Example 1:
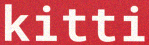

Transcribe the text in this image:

kitti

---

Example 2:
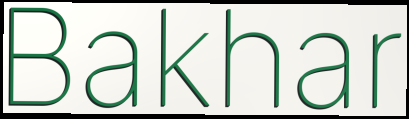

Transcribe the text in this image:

Bakhar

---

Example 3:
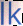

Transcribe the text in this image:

lk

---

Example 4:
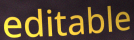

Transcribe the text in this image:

editable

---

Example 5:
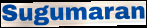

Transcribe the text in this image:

Sugumaran